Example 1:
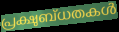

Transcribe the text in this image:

പ്രക്ഷുബ്ധതകൾ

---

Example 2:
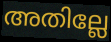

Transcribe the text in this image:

അതില്ലേ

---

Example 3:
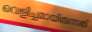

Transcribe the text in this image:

വെളിച്ചമായിരുന്നത്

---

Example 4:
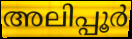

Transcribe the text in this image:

അലിപ്പൂർ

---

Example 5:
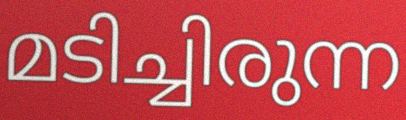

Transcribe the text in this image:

മടിച്ചിരുന്ന